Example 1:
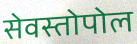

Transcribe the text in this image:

सेवस्तोपोल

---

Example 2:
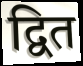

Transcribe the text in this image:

द्वित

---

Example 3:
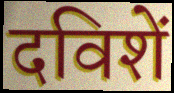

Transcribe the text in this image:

दविशें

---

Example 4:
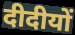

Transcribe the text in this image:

दीदीयों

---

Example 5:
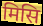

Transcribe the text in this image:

मिसि